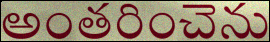
అంతరించెను